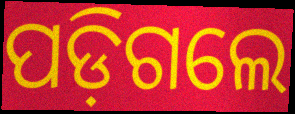
ପଡ଼ିଗଲେ